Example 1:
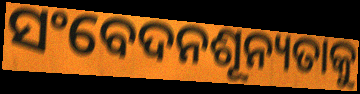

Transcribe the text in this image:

ସଂବେଦନଶୂନ୍ୟତାକୁ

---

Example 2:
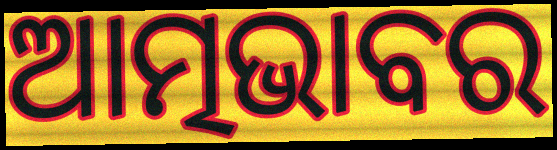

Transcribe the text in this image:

ଆତ୍ମଭାବର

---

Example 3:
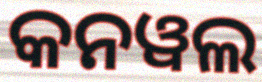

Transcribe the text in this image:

କନୱଲ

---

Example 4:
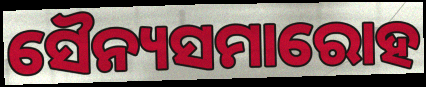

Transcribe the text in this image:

ସୈନ୍ୟସମାରୋହ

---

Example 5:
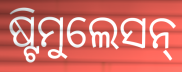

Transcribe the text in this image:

ଷ୍ଟିମୁଲେସନ୍